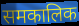
समकालिक